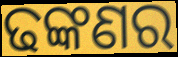
ଢଙ୍କଣର